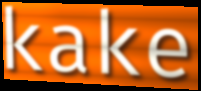
kake